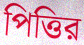
পিত্তির